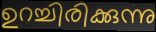
ഉറച്ചിരിക്കുന്നു